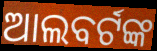
ଆଲବର୍ଟଙ୍କ